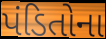
પંડિતોના